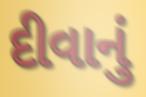
દીવાનું